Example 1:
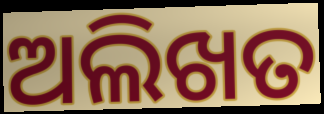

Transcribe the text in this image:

ଅଲିଖତ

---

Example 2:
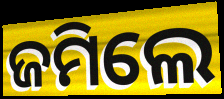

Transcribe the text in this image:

ଜମିଲେ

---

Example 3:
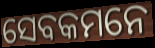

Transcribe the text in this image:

ସେବକମନେ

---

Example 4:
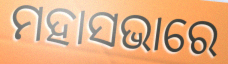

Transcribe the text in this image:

ମହାସଭାରେ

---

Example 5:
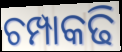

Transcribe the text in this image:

ଚମ୍ପାକଢି